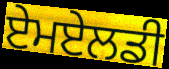
ਏਮਏਲਡੀ